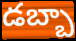
డబ్బా